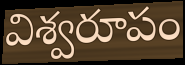
విశ్వరూపం